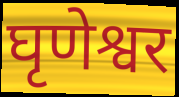
घृणेश्वर